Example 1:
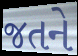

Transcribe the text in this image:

જતને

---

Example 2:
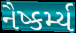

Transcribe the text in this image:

નૈષ્કર્મ્ય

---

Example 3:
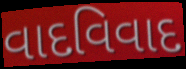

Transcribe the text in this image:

વાદવિવાદ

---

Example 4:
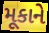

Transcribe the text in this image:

મૂકાને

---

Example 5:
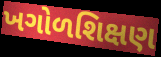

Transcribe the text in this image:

ખગોળશિક્ષણ